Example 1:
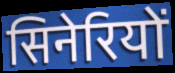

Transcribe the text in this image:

सिनेरियों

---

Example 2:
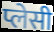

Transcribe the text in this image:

प्लेसी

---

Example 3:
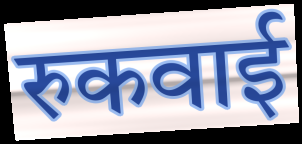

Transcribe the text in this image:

रुकवाई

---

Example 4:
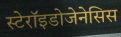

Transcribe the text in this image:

स्टेरॉइडोजेनेसिस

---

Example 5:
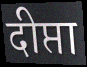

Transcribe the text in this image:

दीप्ता